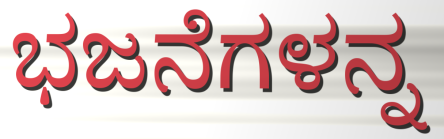
ಭಜನೆಗಳನ್ನ